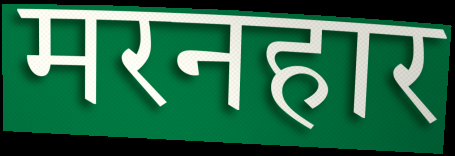
मरनहार